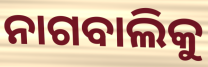
ନାଗବାଲିକୁ